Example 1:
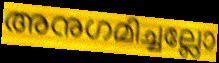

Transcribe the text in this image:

അനുഗമിച്ചല്ലോ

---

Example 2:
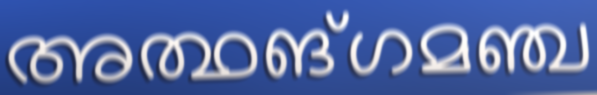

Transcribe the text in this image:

അത്ഥങ്ഗമഞ്ച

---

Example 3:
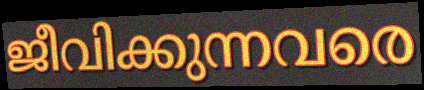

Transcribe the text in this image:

ജീവിക്കുന്നവരെ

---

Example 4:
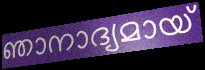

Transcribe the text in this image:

ഞാനാദ്യമായ്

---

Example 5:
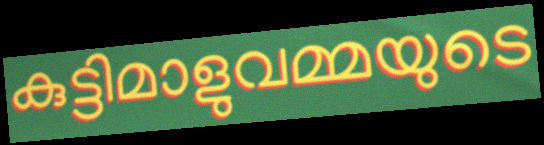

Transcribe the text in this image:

കുട്ടിമാളുവമ്മയുടെ